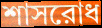
শাসরোধ